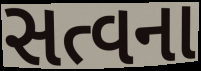
સત્વના